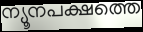
ന്യൂനപക്ഷത്തെ